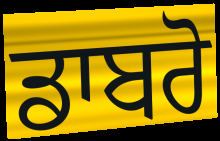
ਡਾਬਰੋ